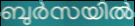
ബുർസയിൽ